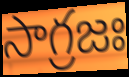
సాగ్రజః